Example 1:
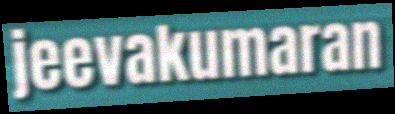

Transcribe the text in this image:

jeevakumaran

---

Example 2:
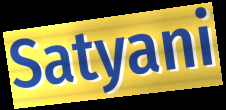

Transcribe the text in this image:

Satyani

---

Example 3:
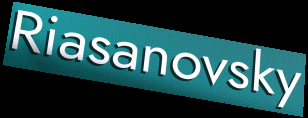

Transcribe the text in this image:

Riasanovsky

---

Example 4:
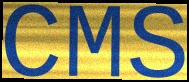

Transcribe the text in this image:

CMS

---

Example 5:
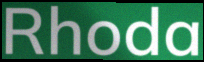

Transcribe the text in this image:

Rhoda